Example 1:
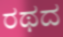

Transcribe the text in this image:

ರಥದ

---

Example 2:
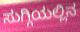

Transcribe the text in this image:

ಸುಗ್ಗಿಯಲ್ಲಿನ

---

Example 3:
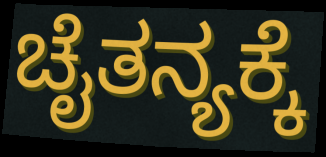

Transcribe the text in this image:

ಚೈತನ್ಯಕ್ಕೆ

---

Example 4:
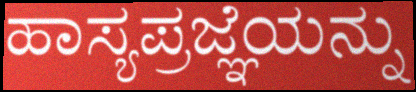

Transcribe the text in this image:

ಹಾಸ್ಯಪ್ರಜ್ಞೆಯನ್ನು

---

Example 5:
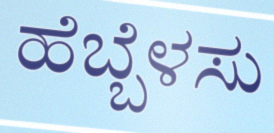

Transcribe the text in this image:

ಹೆಬ್ಬೆಳಸು